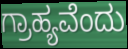
ಗ್ರಾಹ್ಯವೆಂದು